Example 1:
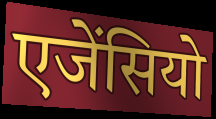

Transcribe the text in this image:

एजेंसियो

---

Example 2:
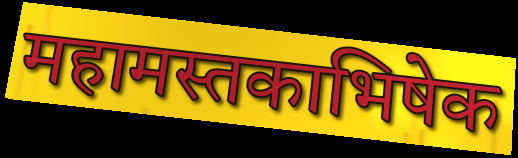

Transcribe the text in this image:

महामस्तकाभिषेक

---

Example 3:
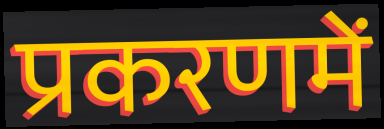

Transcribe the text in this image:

प्रकरणमें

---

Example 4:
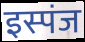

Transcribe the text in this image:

इस्पंज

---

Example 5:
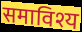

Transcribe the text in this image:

समाविश्य